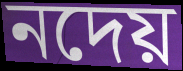
নদেয়